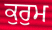
ਕੁਰੁਮ